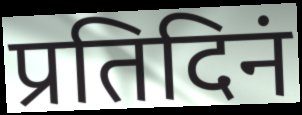
प्रतिदिनं